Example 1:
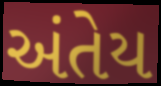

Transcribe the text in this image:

અંતેય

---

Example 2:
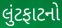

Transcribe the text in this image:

લુંટફાટનો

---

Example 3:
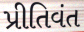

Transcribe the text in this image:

પ્રીતિવંત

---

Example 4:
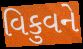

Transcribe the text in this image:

વિકુવને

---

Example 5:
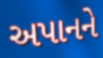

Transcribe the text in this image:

અપાનને